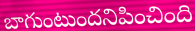
బాగుంటుందనిపించింది